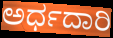
ಅರ್ಧದಾರಿ